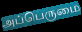
அப்பெருமை